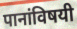
पानांविषयी